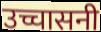
उच्चासनी